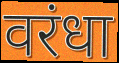
वरंधा